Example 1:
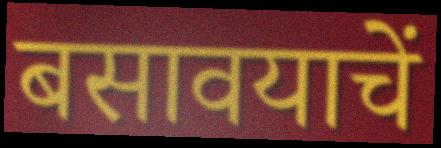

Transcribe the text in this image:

बसावयाचें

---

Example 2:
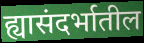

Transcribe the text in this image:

ह्यासंदर्भातील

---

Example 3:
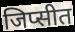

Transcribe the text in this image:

जिप्सीत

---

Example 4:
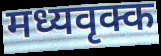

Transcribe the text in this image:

मध्यवृक्क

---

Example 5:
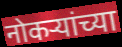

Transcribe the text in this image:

नोकर्‍यांच्या